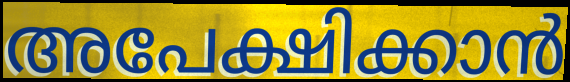
അപേക്ഷിക്കാൻ